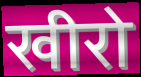
खीरो